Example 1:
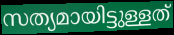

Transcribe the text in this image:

സത്യമായിട്ടുള്ളത്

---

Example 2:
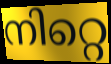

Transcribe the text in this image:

നിറ്റെ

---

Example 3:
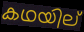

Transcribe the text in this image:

കഥയില്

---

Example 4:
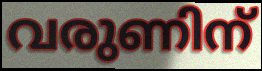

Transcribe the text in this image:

വരുണിന്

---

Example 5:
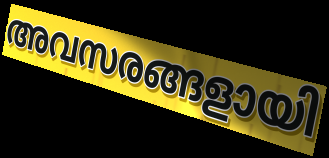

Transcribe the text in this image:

അവസരങ്ങളായി